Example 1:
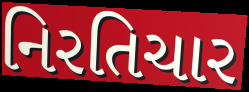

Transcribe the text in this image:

નિરતિચાર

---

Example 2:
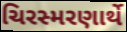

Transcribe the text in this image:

ચિરસ્મરણાર્થે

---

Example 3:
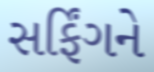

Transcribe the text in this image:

સર્ફિંગને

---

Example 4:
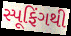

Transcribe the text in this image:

સ્પૂફિંગથી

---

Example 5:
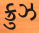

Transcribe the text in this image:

ક્રુઝ